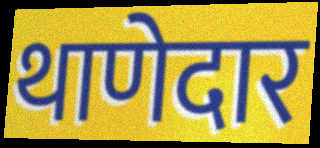
थाणेदार